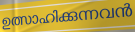
ഉത്സാഹിക്കുന്നവൻ